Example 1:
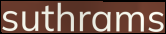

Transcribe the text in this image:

suthrams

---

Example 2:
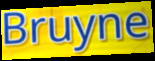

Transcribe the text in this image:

Bruyne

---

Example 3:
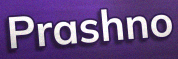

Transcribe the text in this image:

Prashno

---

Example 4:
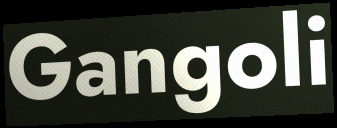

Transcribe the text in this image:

Gangoli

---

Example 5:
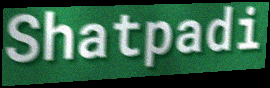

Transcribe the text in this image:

Shatpadi